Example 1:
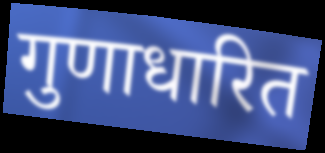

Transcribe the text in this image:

गुणाधारित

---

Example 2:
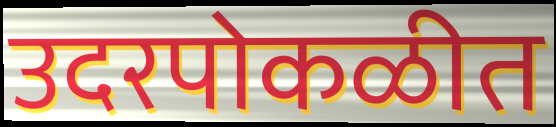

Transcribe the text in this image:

उदरपोकळीत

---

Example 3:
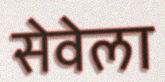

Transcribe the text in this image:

सेवेला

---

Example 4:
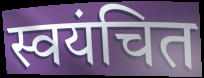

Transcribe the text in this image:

स्वयंचित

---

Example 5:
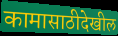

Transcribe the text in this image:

कामासाठीदेखील